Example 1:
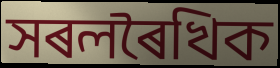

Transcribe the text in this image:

সৰলৰৈখিক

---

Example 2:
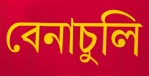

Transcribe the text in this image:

বেনাচুলি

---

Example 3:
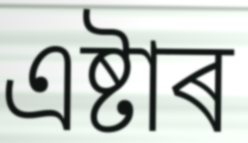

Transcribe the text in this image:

এষ্টাৰ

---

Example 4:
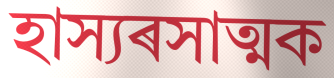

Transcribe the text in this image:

হাস্যৰসাত্মক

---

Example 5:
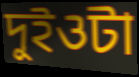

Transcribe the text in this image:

দুইওটা